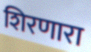
शिरणारा